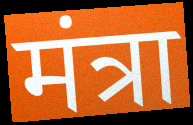
मंत्रा